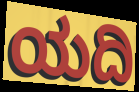
ಯದಿ